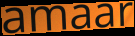
amaar